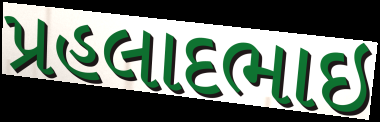
પ્રહલાદભાઇ